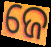
ଜେ